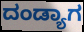
ದಂಡ್ಯಾಗ